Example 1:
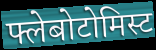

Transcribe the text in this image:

फ्लेबोटोमिस्ट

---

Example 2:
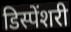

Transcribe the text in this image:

डिस्पेंशरी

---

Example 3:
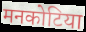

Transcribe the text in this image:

मनकोटिया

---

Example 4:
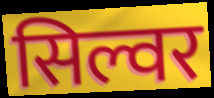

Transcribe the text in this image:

सिल्वर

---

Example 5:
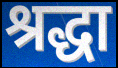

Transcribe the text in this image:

श्रद्धा